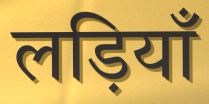
लड़ियाँ